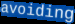
avoiding